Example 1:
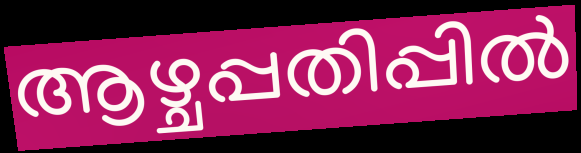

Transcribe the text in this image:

ആഴ്ചപ്പതിപ്പിൽ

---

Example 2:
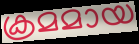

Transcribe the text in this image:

ക്രമമായ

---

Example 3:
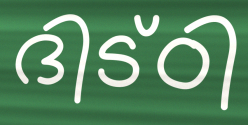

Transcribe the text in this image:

ദിട്ഠി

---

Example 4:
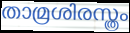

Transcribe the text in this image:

താമ്രശിരസ്ത്രം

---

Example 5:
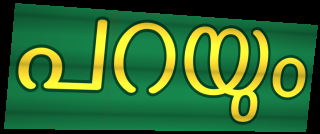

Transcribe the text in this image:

പറയും